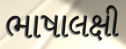
ભાષાલક્ષી